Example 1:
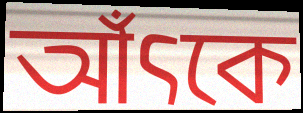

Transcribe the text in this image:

আঁৎকে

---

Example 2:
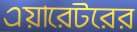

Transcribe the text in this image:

এয়ারেটরের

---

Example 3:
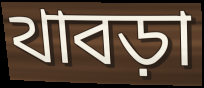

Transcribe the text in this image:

থাবড়া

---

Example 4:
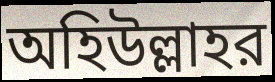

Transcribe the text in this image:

অহিউল্লাহর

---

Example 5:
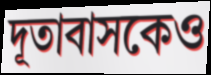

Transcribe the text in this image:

দূতাবাসকেও